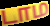
டாம